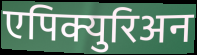
एपिक्युरिअन